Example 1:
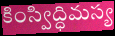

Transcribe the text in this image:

కింస్విద్ధిమస్య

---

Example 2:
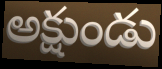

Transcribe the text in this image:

అక్షుండు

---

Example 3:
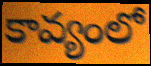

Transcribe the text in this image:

కావ్యంలో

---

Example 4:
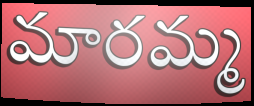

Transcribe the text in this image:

మారమ్మ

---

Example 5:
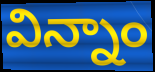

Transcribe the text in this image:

విన్నాం